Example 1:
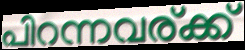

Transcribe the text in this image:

പിറന്നവര്ക്ക്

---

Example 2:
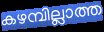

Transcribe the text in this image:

കഴമ്പില്ലാത്ത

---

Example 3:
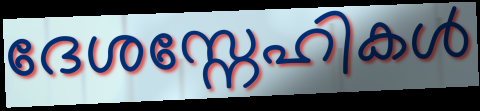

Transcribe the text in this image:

ദേശസ്നേഹികൾ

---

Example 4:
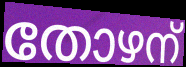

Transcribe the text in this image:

തോഴന്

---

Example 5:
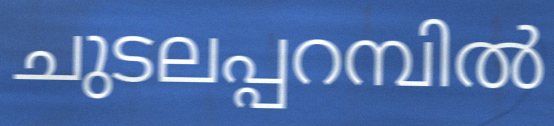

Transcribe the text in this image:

ചുടലപ്പറമ്പിൽ